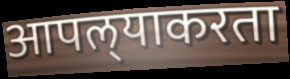
आपल्याकरता